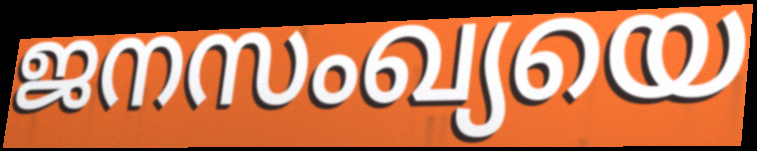
ജനസംഖ്യയെ